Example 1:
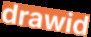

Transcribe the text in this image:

drawid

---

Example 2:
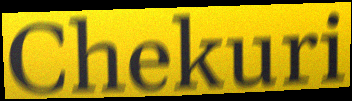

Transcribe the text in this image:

Chekuri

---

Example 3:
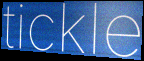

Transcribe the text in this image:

tickle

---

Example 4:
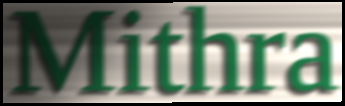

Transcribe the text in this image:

Mithra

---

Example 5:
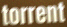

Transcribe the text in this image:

torrent